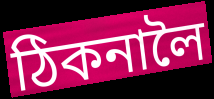
ঠিকনালৈ